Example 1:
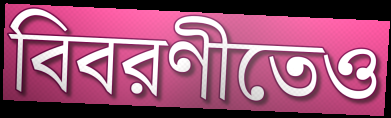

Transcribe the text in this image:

বিবরণীতেও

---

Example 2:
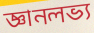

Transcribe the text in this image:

জ্ঞানলভ্য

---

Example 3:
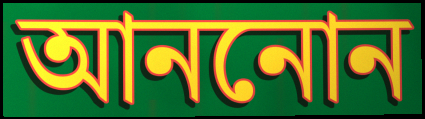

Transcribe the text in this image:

আননোন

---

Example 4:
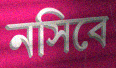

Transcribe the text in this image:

নসিবে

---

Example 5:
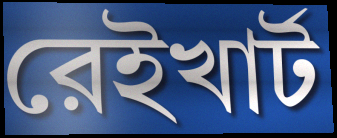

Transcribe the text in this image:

রেইখার্ট